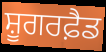
ਸ਼ੂਗਰਫ਼ੈਡ